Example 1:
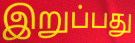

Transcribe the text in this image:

இறுப்பது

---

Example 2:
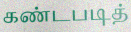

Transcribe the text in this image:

கண்டபடித்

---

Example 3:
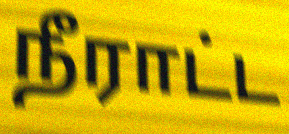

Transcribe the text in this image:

நீராட்ட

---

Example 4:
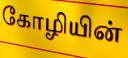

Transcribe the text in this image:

கோழியின்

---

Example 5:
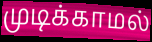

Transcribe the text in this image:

முடிக்காமல்